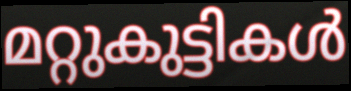
മറ്റുകുട്ടികൾ